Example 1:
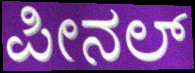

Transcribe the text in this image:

ಪೀನಲ್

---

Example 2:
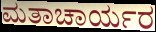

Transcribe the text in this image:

ಮತಾಚಾರ್ಯರ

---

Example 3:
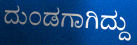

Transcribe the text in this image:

ದುಂಡಗಾಗಿದ್ದು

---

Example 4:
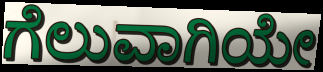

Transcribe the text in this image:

ಗೆಲುವಾಗಿಯೇ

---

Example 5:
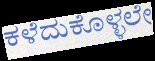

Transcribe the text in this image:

ಕಳೆದುಕೊಳ್ಳಲೇ